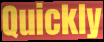
Quickly